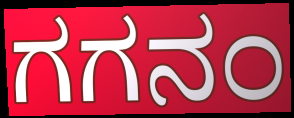
ಗಗನಂ